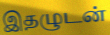
இதழுடன்